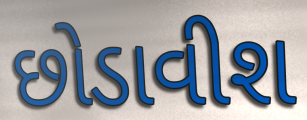
છોડાવીશ